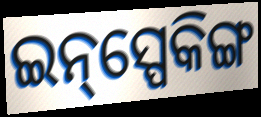
ଇନ୍‌ସ୍ପେକିଙ୍ଗ